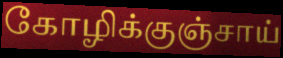
கோழிக்குஞ்சாய்